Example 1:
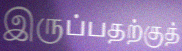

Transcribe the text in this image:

இருப்பதற்குத்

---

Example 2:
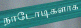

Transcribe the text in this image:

நாடோடிகளாக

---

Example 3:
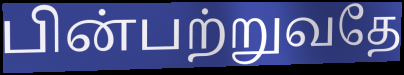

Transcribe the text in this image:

பின்பற்றுவதே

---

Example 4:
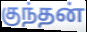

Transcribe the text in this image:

குந்தன்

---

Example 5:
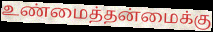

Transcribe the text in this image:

உண்மைத்தன்மைக்கு